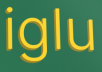
iglu